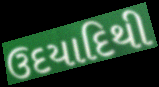
ઉદયાદિથી